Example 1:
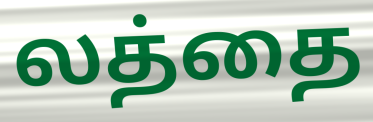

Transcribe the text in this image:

லத்தை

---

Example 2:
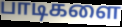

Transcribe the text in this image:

பாடிகளை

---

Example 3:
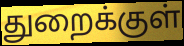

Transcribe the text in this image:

துறைக்குள்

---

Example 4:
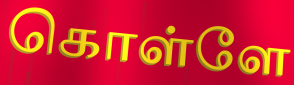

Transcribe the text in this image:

கொள்ளே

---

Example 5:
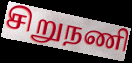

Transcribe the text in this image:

சிறுநணி